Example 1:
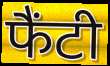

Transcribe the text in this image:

फैंटी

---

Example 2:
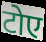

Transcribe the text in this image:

टोए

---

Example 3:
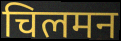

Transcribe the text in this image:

चिलमन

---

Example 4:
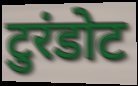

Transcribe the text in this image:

टुरंडोट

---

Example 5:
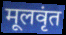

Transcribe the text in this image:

मूलवृंत